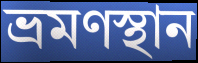
ভ্রমণস্থান